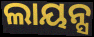
ଲାୟନ୍ସ